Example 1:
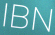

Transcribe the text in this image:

IBN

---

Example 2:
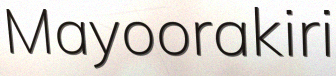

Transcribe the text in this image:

Mayoorakiri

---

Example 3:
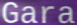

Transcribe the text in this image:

Gara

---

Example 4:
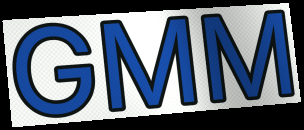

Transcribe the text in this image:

GMM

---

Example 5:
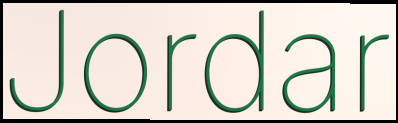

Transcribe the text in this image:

Jordar